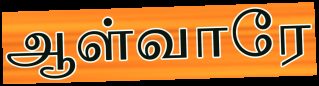
ஆள்வாரே